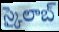
స్కైలాబ్